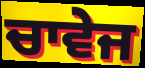
ਚਾਵੇਜ